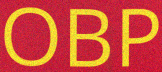
OBP